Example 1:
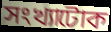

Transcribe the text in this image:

সংখ্যাটোক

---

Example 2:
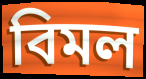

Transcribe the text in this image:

বিমল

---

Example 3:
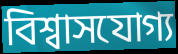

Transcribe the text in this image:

বিশ্বাসযোগ্য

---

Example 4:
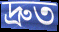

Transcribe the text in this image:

দ্ৰুত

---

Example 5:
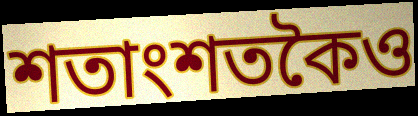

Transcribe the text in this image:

শতাংশতকৈও